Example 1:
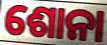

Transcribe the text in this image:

ଶୋନା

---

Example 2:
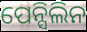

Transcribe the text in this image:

ପେନ୍ସିଲିନ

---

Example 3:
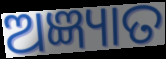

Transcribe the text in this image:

ଅଜ୍ଞ୍ୟାତ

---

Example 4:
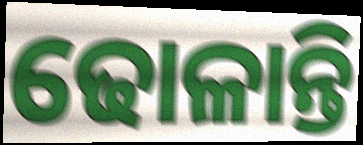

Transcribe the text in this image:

ଢୋଳାନ୍ତି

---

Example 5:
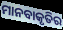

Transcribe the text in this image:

ମାନବାକୃତିର